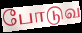
போடுவ